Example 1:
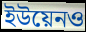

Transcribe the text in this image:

ইউয়েনও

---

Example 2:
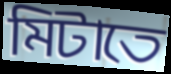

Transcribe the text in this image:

মিটাতে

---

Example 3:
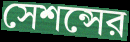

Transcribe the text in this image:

সেশন্সের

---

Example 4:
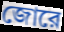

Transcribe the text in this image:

জোরে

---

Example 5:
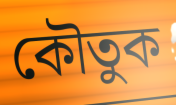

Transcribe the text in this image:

কৌতুক